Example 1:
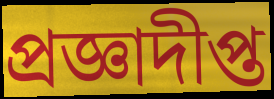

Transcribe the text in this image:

প্রজ্ঞাদীপ্ত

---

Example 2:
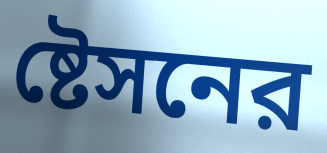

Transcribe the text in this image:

ষ্টেসনের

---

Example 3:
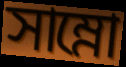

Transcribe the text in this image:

সাম্নো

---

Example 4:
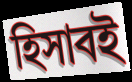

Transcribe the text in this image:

হিসাবই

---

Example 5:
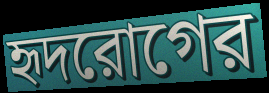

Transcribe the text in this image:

হৃদরোগের